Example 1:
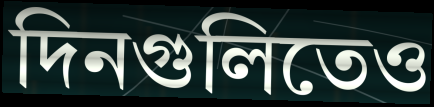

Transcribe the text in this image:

দিনগুলিতেও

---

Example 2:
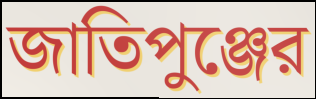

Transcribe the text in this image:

জাতিপুঞ্জের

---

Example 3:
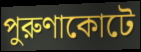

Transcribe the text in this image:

পুরুণাকোটে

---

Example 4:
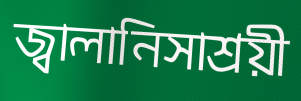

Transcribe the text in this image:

জ্বালানিসাশ্রয়ী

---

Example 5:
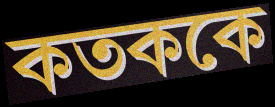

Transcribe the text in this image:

কতককে